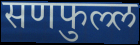
सणफुल्ल